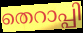
തെറാപ്പി